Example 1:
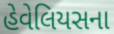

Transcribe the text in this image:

હેવેલિયસના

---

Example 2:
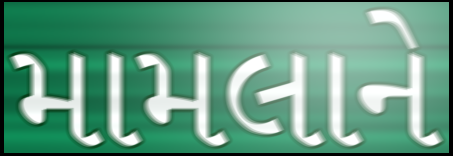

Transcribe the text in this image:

મામલાને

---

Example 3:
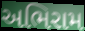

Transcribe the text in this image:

અભિરામ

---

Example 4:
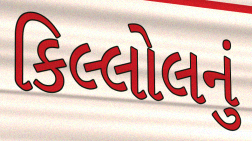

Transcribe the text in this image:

કિલ્લોલનું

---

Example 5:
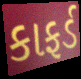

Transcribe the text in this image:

કાફર્ડ